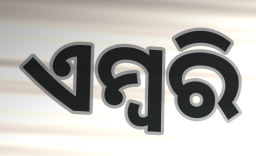
ଏମ୍ବରି